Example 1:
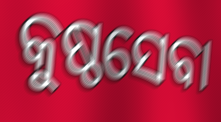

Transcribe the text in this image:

କୁଷ୍ଠସେବା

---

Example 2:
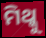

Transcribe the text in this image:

ମିଥ୍କୁ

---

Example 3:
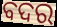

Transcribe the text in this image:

ବଦର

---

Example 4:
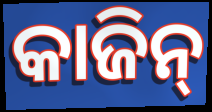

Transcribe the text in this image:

କାଜିନ୍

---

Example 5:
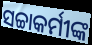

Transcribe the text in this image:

ସଚ୍ଚାକର୍ମୀଙ୍କ